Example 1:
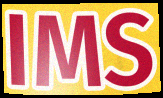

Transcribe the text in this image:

IMS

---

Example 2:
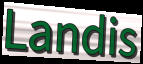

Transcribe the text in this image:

Landis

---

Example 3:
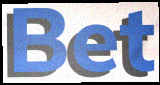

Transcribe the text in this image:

Bet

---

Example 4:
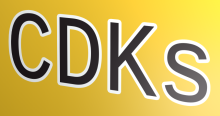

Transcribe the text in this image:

CDKs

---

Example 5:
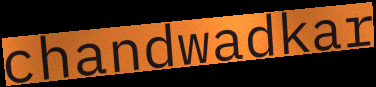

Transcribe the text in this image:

chandwadkar